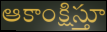
ఆకాంక్షిస్తూ